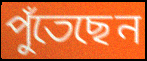
পুঁতেছেন